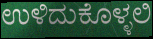
ಉಳಿದುಕೊಳ್ಳಲಿ